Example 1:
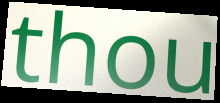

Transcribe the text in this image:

thou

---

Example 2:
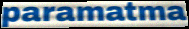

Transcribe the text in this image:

paramatma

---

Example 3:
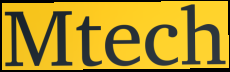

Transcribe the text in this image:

Mtech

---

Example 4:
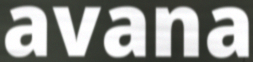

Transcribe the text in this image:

avana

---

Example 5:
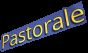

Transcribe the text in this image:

Pastorale